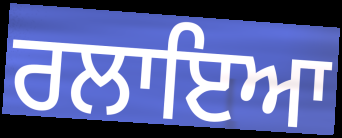
ਰਲਾਇਆ